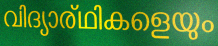
വിദ്യാര്ഥികളെയും